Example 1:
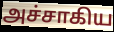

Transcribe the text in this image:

அச்சாகிய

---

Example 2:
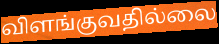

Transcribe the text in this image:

விளங்குவதில்லை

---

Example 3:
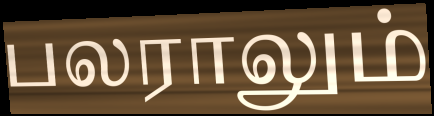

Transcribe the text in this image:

பலராலும்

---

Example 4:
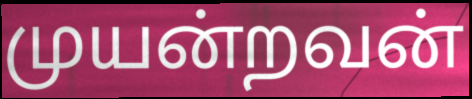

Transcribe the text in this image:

முயன்றவன்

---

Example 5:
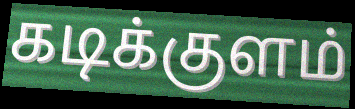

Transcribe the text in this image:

கடிக்குளம்